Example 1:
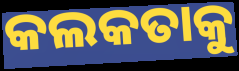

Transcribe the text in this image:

କଲକତାକୁ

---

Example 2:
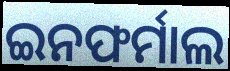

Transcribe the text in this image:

ଇନଫର୍ମାଲ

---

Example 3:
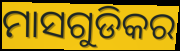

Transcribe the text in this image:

ମାସଗୁଡିକର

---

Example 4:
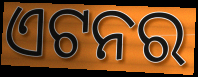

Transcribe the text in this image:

ଏଟନର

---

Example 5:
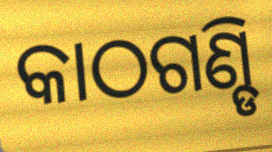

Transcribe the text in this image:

କାଠଗଣ୍ଡି